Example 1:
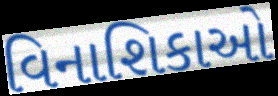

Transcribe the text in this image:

વિનાશિકાઓ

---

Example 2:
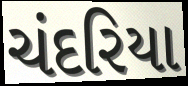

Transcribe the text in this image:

ચંદરિયા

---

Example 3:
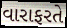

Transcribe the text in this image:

વારાફરતે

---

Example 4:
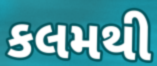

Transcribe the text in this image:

કલમથી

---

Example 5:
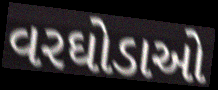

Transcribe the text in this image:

વરઘોડાઓ